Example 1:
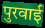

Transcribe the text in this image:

पुरवाई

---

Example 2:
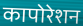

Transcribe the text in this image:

कापोरेशन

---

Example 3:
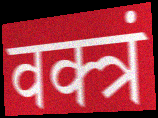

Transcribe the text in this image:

वक्त्रं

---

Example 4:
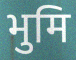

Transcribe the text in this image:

भुमि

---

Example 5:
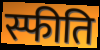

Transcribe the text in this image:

स्‍फीति